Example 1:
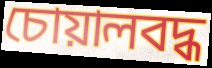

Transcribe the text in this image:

চোয়ালবদ্ধ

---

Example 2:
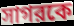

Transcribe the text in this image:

সাগরকে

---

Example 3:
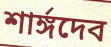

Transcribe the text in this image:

শার্ঙ্গদেব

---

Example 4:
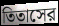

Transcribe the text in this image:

তিতাসের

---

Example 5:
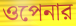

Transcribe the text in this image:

ওপেনার